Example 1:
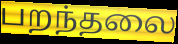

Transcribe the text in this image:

பறந்தலை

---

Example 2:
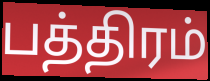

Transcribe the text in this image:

பத்திரம்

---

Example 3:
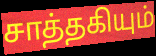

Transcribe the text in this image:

சாத்தகியும்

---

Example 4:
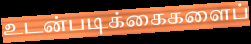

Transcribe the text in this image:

உடன்படிக்கைகளைப்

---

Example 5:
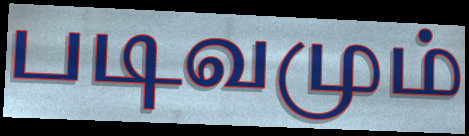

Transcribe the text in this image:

படிவமும்